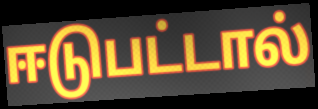
ஈடுபட்டால்